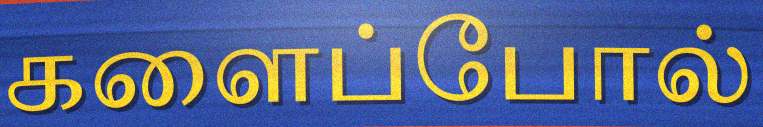
களைப்போல்